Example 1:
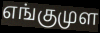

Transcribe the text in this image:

எங்குமுள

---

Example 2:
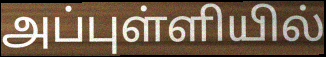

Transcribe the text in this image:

அப்புள்ளியில்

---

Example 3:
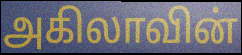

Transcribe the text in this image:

அகிலாவின்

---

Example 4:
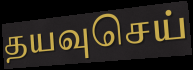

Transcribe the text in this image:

தயவுசெய்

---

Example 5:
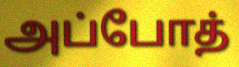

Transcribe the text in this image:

அப்போத்